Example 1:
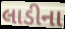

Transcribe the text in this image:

લાડીના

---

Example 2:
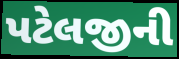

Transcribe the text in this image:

પટેલજીની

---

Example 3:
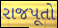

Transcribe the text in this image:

રાજપૂતો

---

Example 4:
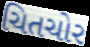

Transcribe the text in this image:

ચિતચોર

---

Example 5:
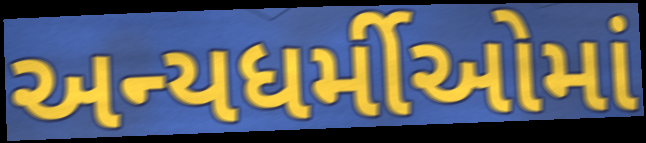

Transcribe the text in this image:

અન્યધર્મીઓમાં